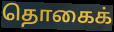
தொகைக்